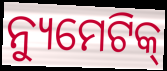
ନ୍ୟୁମେଟିକ୍